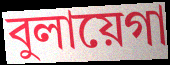
বুলায়েগা